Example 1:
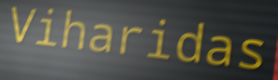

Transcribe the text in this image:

Viharidas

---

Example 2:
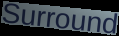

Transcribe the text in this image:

Surround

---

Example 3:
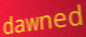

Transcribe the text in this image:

dawned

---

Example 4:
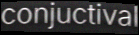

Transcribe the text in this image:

conjuctival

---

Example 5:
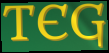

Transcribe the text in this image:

TEG